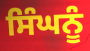
ਸਿੰਘਨੂੰ